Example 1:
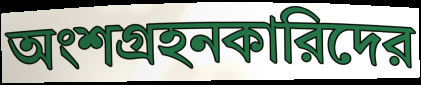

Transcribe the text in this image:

অংশগ্রহনকারিদের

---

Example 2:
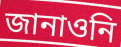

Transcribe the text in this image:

জানাওনি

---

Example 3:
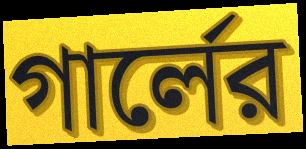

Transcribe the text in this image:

গার্লের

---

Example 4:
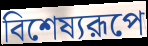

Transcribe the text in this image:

বিশেষ্যরূপে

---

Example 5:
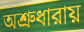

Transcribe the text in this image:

অশ্রুধারায়